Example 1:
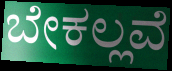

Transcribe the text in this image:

ಬೇಕಲ್ಲವೆ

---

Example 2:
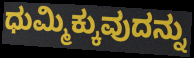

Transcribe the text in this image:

ಧುಮ್ಮಿಕ್ಕುವುದನ್ನು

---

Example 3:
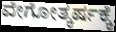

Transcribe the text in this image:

ವೇಗೋತ್ಕರ್ಷಕ್ಕೆ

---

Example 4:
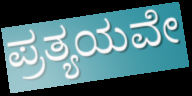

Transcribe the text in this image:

ಪ್ರತ್ಯಯವೇ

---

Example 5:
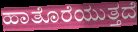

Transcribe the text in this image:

ಹಾತೊರೆಯುತ್ತದೆ